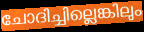
ചോദിച്ചില്ലെങ്കിലും